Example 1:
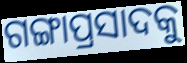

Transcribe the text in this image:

ଗଙ୍ଗାପ୍ରସାଦକୁ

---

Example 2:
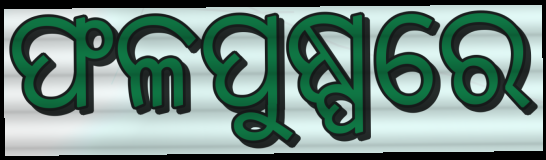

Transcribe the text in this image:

ଫଳପୁଷ୍ପରେ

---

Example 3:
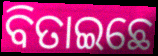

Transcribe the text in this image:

ବିତାଇଛେ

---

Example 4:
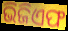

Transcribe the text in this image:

ଭିଜିଏଫ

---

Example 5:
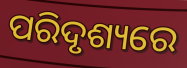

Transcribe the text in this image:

ପରିଦୃଶ୍ୟରେ